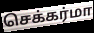
செக்கர்மா